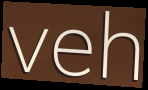
veh